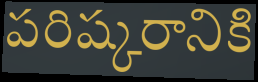
పరిష్కరానికి